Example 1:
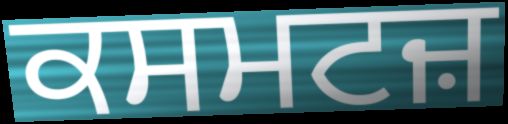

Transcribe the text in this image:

ਕਸਮਟਜ਼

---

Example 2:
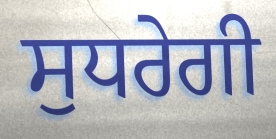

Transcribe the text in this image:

ਸੁਧਰੇਗੀ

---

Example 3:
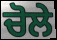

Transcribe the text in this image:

ਚੋਲੇ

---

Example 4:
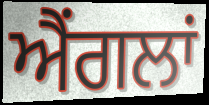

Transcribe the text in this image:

ਐਂਗਲਾਂ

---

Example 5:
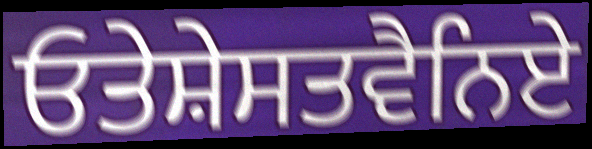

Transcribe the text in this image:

ਓਤੇਸ਼ੇਸਤਵੈਨਿਏ